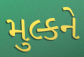
મુલ્કને